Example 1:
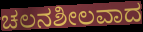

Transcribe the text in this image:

ಚಲನಶೀಲವಾದ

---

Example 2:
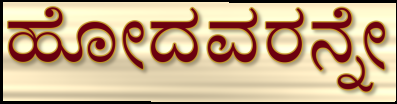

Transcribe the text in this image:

ಹೋದವರನ್ನೇ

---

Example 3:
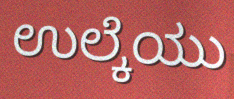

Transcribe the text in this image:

ಉಲ್ಕೆಯು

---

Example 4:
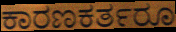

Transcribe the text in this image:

ಕಾರಣಕರ್ತರೂ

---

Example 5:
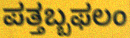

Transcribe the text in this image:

ಪತ್ತಬ್ಬಫಲಂ